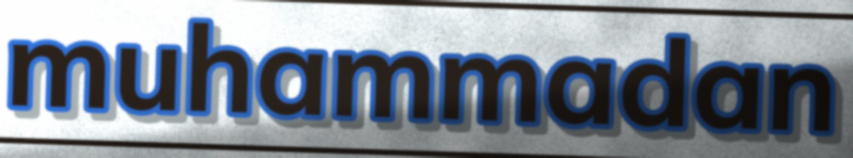
muhammadan